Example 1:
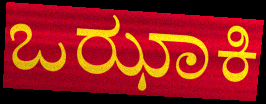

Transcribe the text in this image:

ಒಝಾಕಿ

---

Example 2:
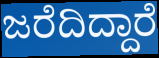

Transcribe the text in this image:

ಜರೆದಿದ್ದಾರೆ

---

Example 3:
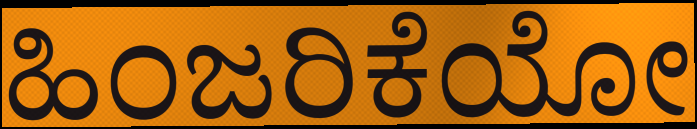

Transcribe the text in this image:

ಹಿಂಜರಿಕೆಯೋ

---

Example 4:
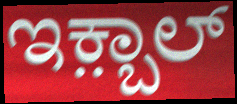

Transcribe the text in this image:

ಇಕ಼್ಬಾಲ್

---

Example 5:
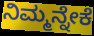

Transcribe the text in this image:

ನಿಮ್ಮನ್ನೇಕೆ